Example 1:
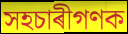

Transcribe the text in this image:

সহচাৰীগণক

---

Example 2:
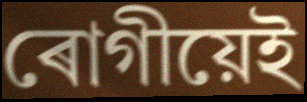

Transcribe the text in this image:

ৰোগীয়েই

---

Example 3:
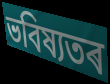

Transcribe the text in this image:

ভবিষ্যতৰ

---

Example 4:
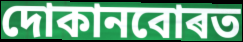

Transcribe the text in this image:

দোকানবোৰত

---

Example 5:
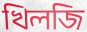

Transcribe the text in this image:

খিলজি